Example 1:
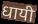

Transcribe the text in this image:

धायी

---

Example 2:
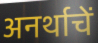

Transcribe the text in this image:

अनर्थाचें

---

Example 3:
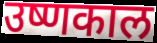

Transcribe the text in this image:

उष्णकाल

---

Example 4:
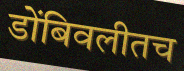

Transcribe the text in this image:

डोंबिवलीतच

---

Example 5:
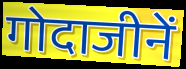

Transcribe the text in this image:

गोदाजीनें